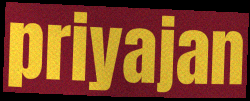
priyajan